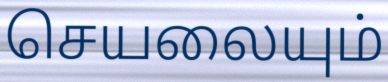
செயலையும்